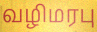
வழிமரபு